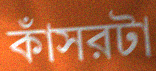
কাঁসরটা